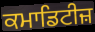
ਕਮਾਡਿਟੀਜ਼